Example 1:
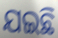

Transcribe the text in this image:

ଯଇଛି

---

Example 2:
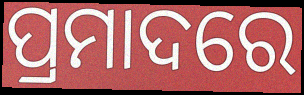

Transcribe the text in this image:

ପ୍ରମାଦରେ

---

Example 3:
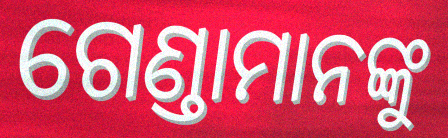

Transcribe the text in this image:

ଗେଣ୍ଡାମାନଙ୍କୁ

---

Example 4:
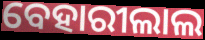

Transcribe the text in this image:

ବେହାରୀଲାଲ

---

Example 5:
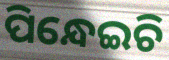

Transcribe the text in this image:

ପିନ୍ଧେଇଚି